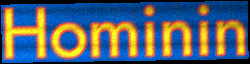
Hominin